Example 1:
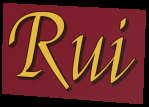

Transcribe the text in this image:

Rui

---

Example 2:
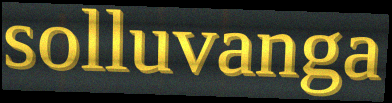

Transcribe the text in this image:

solluvanga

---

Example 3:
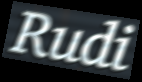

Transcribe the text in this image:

Rudi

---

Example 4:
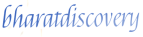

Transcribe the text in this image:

bharatdiscovery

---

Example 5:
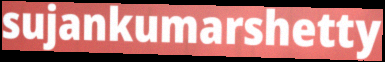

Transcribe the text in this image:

sujankumarshetty